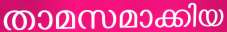
താമസമാക്കിയ